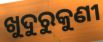
ଖୁଦୁରୁକୁଣୀ